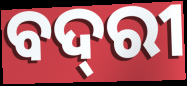
ବଦ୍‌ରୀ